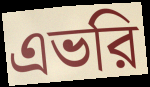
এভরি